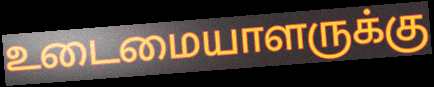
உடைமையாளருக்கு